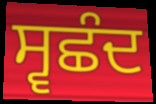
ਸ੍ਵਛੰਦ